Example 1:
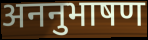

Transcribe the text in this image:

अननुभाषण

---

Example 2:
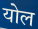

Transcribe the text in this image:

योल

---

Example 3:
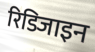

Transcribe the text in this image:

रिडिजाइन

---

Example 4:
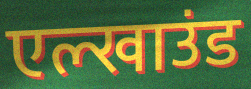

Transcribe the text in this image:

एल्खाउंड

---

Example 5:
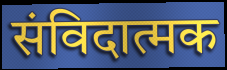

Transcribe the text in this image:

संविदात्मक